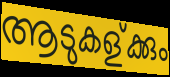
ആടുകള്ക്കും